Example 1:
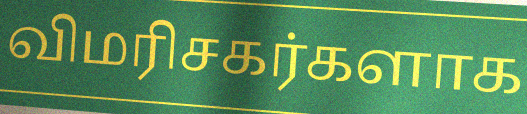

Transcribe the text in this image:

விமரிசகர்களாக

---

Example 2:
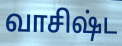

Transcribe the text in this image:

வாசிஷ்ட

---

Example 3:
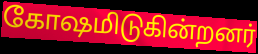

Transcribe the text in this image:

கோஷமிடுகின்றனர்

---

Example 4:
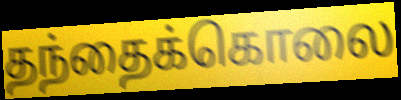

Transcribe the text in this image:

தந்தைக்கொலை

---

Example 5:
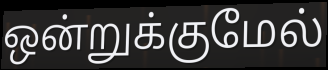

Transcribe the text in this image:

ஒன்றுக்குமேல்